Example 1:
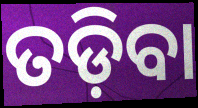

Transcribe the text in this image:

ତଡ଼ିବା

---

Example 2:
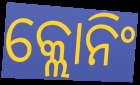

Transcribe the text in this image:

କ୍ଲୋନିଂ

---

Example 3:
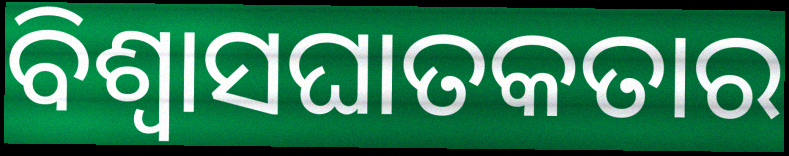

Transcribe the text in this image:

ବିଶ୍ୱାସଘାତକତାର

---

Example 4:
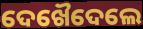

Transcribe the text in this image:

ଦେଖୈଦେଲେ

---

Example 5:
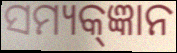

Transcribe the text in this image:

ସମ୍ୟକ୍‌ଜ୍ଞାନ